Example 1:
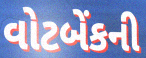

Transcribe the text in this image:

વોટબેંકની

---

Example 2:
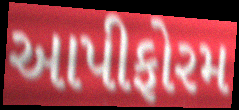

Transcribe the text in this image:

આપીફોરમ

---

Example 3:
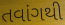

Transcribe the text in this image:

તવાંગથી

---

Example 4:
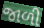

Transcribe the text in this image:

જાળી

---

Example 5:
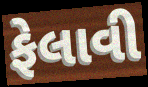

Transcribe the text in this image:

ફેલાવી